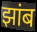
झांब